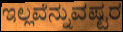
ಇಲ್ಲವೆನ್ನುವಷ್ಟರ